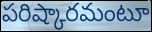
పరిష్కారమంటూ